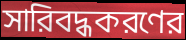
সারিবদ্ধকরণের